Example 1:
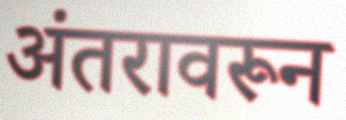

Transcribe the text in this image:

अंतरावरून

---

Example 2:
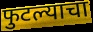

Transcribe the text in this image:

फुटल्याचा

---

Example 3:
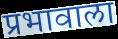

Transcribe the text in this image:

प्रभावाला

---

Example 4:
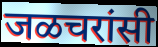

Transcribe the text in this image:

जळचरांसी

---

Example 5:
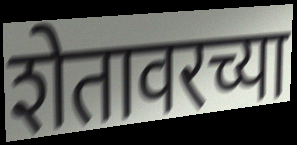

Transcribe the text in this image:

शेतावरच्या